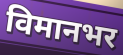
विमानभर